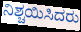
ನಿಶ್ಚಯಿಸಿದರು